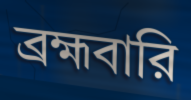
ব্রহ্মবারি